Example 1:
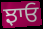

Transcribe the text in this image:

ਝਾਓ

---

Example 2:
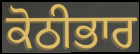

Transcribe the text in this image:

ਕੋਠੀਭਾਰ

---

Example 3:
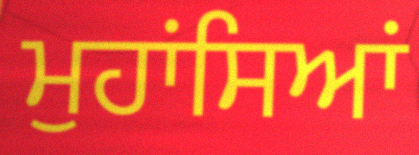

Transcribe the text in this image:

ਮੁਹਾਂਸਿਆਂ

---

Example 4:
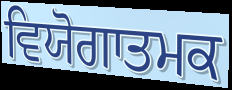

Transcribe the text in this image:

ਵਿਯੋਗਾਤਮਕ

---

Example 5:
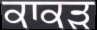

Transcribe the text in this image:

ਕਾਕੜ